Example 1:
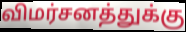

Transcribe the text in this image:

விமர்சனத்துக்கு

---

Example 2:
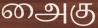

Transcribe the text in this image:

அைகு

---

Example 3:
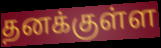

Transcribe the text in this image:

தனக்குள்ள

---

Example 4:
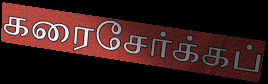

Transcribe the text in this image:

கரைசேர்க்கப்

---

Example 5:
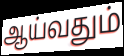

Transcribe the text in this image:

ஆய்வதும்